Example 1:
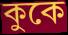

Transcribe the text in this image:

কুকে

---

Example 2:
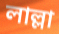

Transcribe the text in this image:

লাল্লা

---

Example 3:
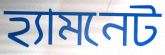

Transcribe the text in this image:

হ্যামনেট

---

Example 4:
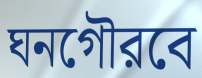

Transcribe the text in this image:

ঘনগৌরবে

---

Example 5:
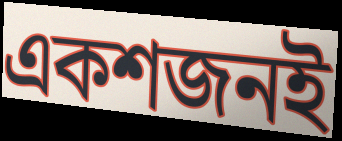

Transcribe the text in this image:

একশজনই